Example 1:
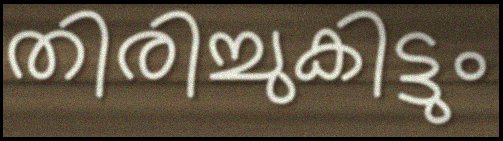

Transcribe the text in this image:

തിരിച്ചുകിട്ടും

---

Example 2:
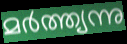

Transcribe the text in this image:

മർത്ത്യന്നു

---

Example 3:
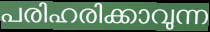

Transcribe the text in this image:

പരിഹരിക്കാവുന്ന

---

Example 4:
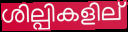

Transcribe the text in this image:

ശില്പികളില്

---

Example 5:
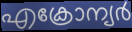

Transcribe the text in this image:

എക്രോന്യർ